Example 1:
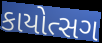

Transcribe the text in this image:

કાયોત્સગ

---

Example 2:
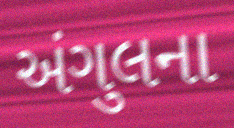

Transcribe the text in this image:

અંગુલના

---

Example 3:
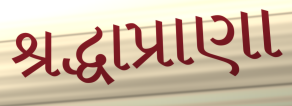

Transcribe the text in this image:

શ્રદ્ધાપ્રાણા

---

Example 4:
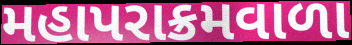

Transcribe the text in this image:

મહાપરાક્રમવાળા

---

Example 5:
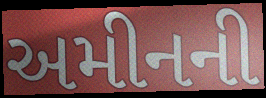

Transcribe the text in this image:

અમીનની